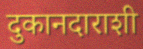
दुकानदाराशी